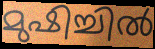
മുഷിച്ചിൽ